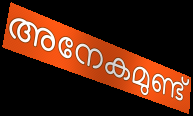
അനേകമുണ്ട്